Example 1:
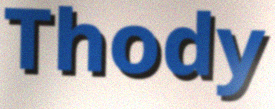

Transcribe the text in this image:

Thody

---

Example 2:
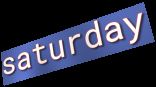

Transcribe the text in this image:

saturday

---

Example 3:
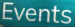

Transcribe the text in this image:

Events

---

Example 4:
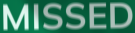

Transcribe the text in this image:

MISSED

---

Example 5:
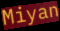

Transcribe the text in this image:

Miyan